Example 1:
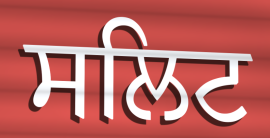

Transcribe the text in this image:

ਸਲਿਟ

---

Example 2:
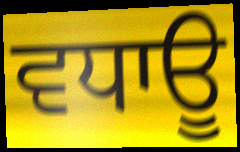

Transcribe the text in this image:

ਵਧਾਊ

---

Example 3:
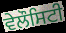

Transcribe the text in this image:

ਵੇਲੌਸਿਟੀ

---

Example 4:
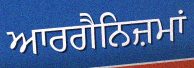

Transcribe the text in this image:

ਆਰਗੈਨਿਜ਼ਮਾਂ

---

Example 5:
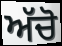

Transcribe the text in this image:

ਅੱਚੋ